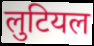
लुटियल